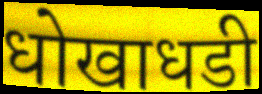
धोखाधडी